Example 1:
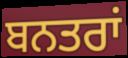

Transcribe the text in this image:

ਬਨਤਰਾਂ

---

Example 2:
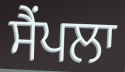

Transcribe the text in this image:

ਸੈਂਪਲਾ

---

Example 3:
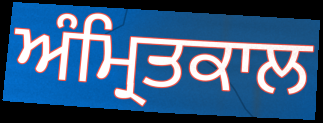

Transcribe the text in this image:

ਅੰਮ੍ਰਿਤਕਾਲ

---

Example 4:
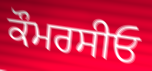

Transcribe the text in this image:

ਕੌਮਰਸੀਓ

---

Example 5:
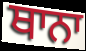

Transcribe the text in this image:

ਥਾਨਾ